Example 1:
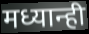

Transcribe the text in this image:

मध्यान्ही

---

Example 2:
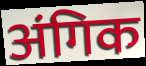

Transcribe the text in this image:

अंगिक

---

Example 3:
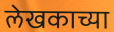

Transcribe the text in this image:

लेखकाच्या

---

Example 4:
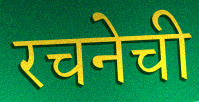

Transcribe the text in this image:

रचनेची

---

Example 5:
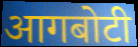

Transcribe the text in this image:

आगबोटी